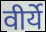
वीर्ये